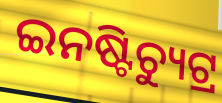
ଇନଷ୍ଟିଚ୍ୟୁଟ୍ର